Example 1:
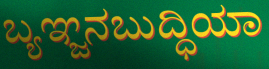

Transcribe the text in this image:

ಬ್ಯಞ್ಜನಬುದ್ಧಿಯಾ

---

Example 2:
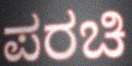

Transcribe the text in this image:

ಪರಚಿ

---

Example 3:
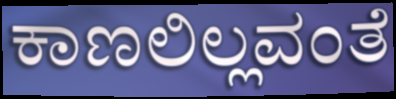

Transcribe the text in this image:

ಕಾಣಲಿಲ್ಲವಂತೆ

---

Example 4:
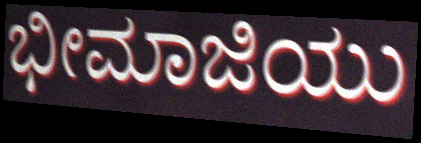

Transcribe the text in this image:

ಭೀಮಾಜಿಯು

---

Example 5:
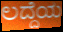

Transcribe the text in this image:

ಲದ್ದೆಯ